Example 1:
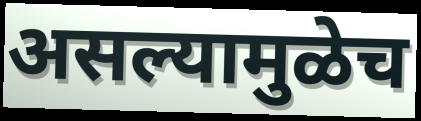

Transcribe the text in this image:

असल्यामुळेच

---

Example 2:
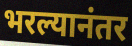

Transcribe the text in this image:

भरल्यानंतर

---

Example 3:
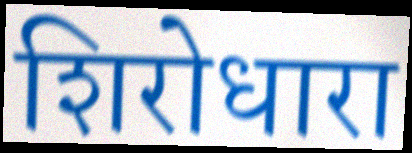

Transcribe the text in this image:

शिरोधारा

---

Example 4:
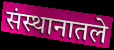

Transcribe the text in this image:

संस्थानातले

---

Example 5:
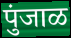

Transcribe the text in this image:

पुंजाळ